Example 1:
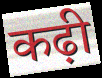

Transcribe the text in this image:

कढ़ी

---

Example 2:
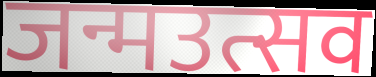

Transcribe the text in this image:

जन्मउत्सव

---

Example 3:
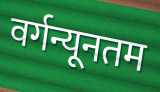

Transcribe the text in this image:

वर्गन्यूनतम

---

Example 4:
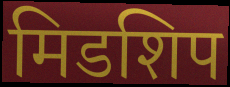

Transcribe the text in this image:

मिडशिप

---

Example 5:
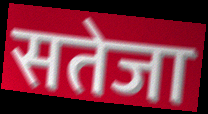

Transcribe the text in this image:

सतेजा